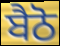
ਬੈਠੋ